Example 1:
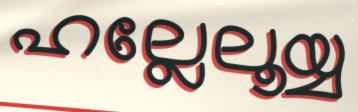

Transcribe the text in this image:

ഹല്ലേലൂയ്യ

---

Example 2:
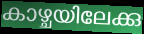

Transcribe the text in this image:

കാഴ്ചയിലേക്കു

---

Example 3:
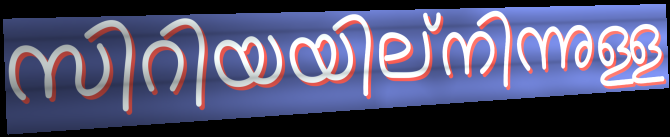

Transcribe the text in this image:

സിറിയയില്നിന്നുള്ള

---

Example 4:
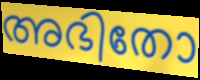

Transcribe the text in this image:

അഭിതോ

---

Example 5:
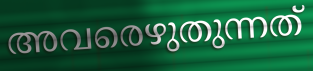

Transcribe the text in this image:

അവരെഴുതുന്നത്